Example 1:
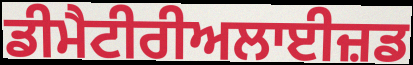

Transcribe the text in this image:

ਡੀਮੈਟੀਰੀਅਲਾਈਜ਼ਡ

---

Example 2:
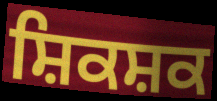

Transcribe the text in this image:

ਸ਼ਿਕਸ਼ਕ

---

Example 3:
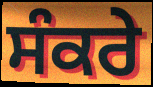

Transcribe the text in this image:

ਸੰਕਰੇ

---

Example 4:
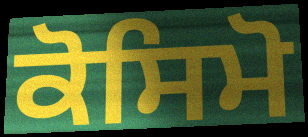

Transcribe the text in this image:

ਕੋਸਿਮੋ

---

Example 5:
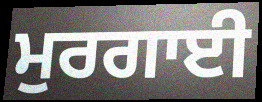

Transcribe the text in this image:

ਮੁਰਗਾਈ